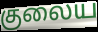
குலைய